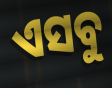
ଏସବୁ